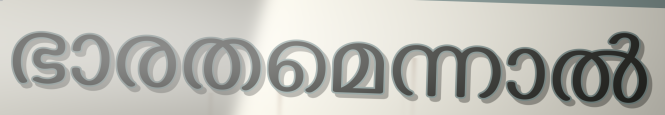
ഭാരതമെന്നാൽ